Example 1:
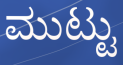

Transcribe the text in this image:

ಮುಟ್ಟು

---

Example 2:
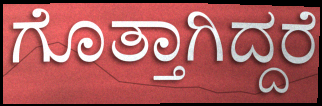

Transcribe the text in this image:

ಗೊತ್ತಾಗಿದ್ದರೆ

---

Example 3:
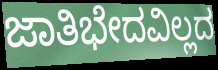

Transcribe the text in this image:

ಜಾತಿಭೇದವಿಲ್ಲದ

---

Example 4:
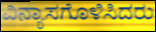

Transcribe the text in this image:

ವಿನ್ಯಾಸಗೊಳಿಸಿದರು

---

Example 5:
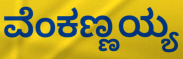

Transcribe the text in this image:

ವೆಂಕಣ್ಣಯ್ಯ